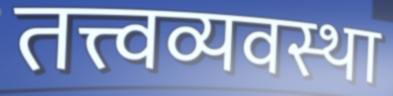
तत्त्वव्यवस्था